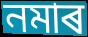
নমাৰ